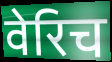
वेरिच